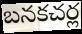
బనకచర్ల